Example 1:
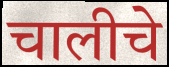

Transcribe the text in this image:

चालीचे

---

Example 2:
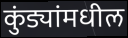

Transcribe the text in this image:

कुंड्यांमधील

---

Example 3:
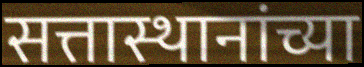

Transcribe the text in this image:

सत्तास्थानांच्या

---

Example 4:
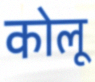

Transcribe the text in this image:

कोलू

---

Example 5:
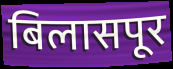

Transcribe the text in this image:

बिलासपूर